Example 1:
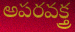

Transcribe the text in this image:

అపరవక్త్ర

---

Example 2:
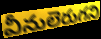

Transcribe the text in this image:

వీనులెరుగని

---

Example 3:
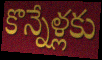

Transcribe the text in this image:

కొన్నేళ్లకు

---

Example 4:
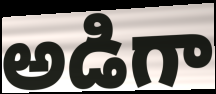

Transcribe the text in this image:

అడిగా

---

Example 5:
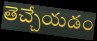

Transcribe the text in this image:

తెచ్చేయడం